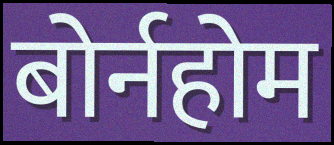
बोर्नहोम